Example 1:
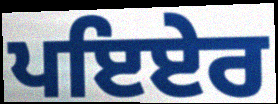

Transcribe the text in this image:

ਪਇਏਰ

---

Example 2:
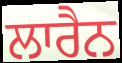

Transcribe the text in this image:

ਲਾਰੈਨ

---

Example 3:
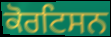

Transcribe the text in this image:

ਕੋਰਟਿਸਨ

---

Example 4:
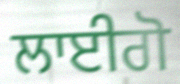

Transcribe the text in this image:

ਲਾਈਗੋ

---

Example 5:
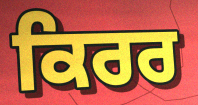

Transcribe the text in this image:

ਕਿਰਰ